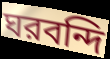
ঘরবন্দি